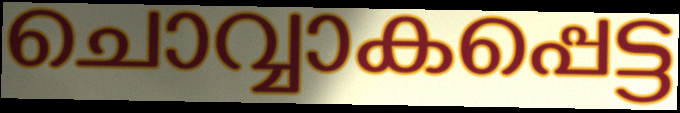
ചൊവ്വാകപ്പെട്ട